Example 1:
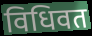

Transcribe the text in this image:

विधिवत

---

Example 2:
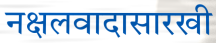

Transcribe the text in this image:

नक्षलवादासारखी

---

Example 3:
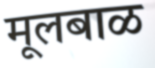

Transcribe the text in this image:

मूलबाळ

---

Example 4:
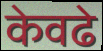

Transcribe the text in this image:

केवढे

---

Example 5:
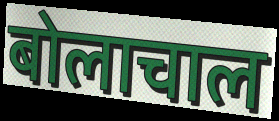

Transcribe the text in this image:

बोलाचाल